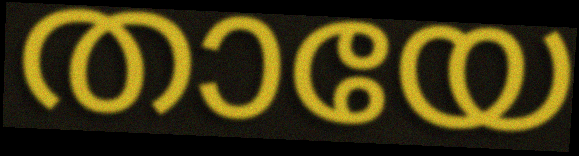
തായേ